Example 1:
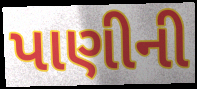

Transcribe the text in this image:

પાણીની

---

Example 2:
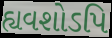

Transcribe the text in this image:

હ્યવશોઽપિ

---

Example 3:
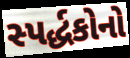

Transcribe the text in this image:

સ્પર્દ્ધકોનો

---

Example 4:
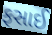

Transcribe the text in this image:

ફસાઈ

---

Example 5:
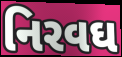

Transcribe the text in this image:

નિરવઘ